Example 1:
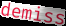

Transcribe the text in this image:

demiss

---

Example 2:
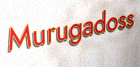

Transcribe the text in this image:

Murugadoss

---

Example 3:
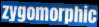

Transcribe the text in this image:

zygomorphic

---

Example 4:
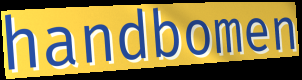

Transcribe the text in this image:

handbomen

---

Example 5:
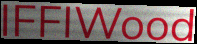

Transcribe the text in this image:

IFFIWood